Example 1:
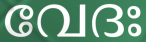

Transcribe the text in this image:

വേദഃ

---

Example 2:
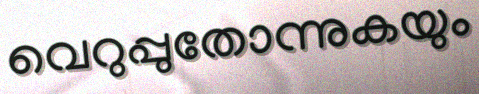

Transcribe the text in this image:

വെറുപ്പുതോന്നുകയും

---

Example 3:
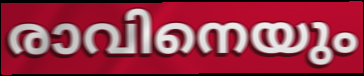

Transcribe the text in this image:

രാവിനെയും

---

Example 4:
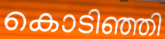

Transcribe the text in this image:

കൊടിഞ്ഞി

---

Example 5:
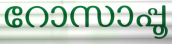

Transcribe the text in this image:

റോസാപ്പൂ